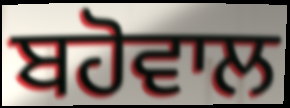
ਬਹੋਵਾਲ